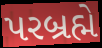
પરબ્રહ્મે